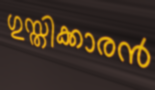
ഗുസ്തിക്കാരൻ